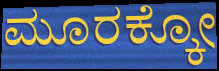
ಮೂರಕ್ಕೋ